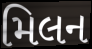
મિલન